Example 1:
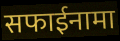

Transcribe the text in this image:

सफाईनामा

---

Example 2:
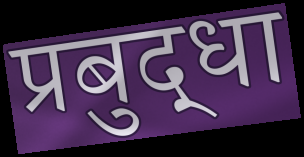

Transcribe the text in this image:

प्रबुद्धा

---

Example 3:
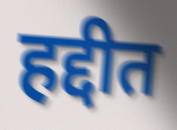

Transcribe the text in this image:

हद्दीत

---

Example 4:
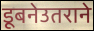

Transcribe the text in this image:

डूबनेउतराने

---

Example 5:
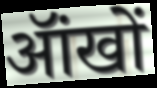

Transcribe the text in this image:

ऑंखों